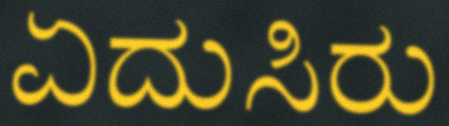
ಏದುಸಿರು